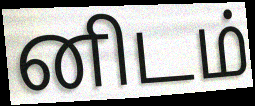
னிடம்